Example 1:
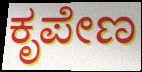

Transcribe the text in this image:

ಕೃಪೇಣ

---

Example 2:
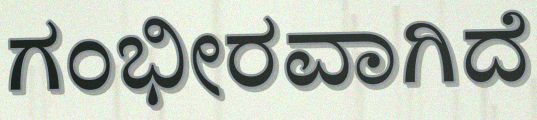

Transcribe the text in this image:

ಗಂಭೀರವಾಗಿದೆ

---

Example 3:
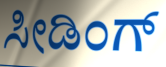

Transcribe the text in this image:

ಸೀಡಿಂಗ್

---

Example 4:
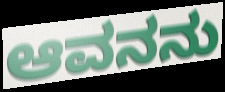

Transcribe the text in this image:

ಆವನನು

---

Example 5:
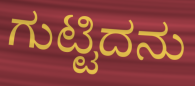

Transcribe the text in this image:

ಗುಟ್ಟಿದನು